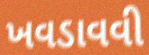
ખવડાવવી